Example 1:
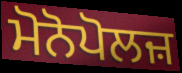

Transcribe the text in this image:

ਮੋਨੋਪੋਲਜ਼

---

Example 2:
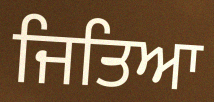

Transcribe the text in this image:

ਜਿਤਿਆ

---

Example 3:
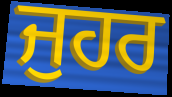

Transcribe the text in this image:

ਜੁਹਰ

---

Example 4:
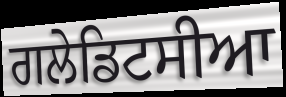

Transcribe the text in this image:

ਗਲੇਡਿਟਸੀਆ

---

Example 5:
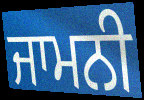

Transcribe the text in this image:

ਜਾਮਨੀ